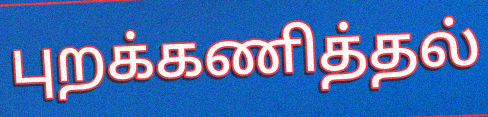
புறக்கணித்தல்